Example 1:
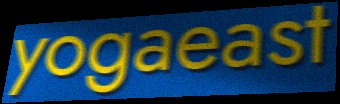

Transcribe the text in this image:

yogaeast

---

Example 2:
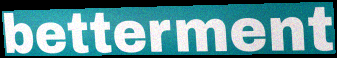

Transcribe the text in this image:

betterment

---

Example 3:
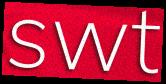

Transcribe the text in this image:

swt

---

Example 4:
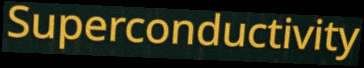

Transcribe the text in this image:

Superconductivity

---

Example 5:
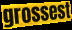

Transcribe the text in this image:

grossest